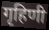
गृहिणी